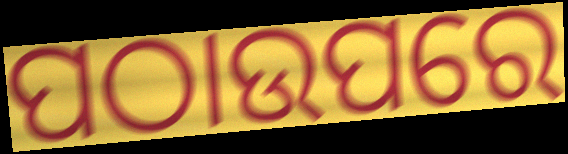
ପଠାଉପରେ